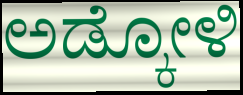
ಅಡ್ಕೋಳಿ